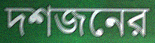
দশজনের